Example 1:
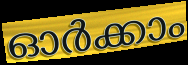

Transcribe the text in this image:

ഓർക്കാം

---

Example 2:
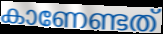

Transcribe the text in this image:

കാണേണ്ടത്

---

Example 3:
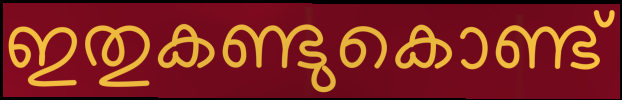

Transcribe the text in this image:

ഇതുകണ്ടുകൊണ്ട്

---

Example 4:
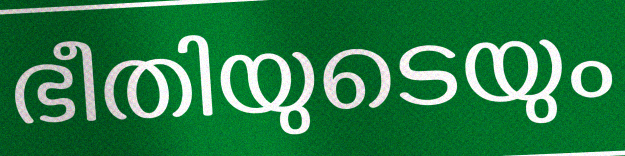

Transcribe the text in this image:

ഭീതിയുടെയും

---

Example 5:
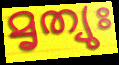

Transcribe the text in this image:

മൃത്യുഃ